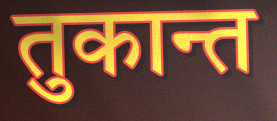
तुकान्त